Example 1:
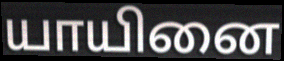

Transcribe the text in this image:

யாயினை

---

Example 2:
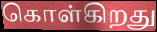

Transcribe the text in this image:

கொள்கிறது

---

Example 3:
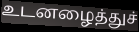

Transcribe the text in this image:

உடனழைத்துச்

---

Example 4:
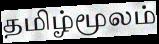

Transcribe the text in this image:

தமிழ்மூலம்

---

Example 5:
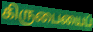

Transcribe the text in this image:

கிருபையைப்